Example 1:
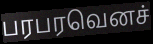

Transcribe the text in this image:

பரபரவெனச்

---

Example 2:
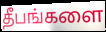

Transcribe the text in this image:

தீபங்களை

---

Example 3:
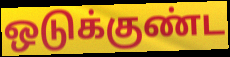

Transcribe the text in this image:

ஒடுக்குண்ட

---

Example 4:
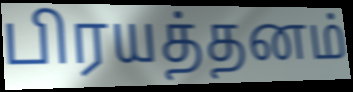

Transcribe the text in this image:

பிரயத்தனம்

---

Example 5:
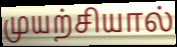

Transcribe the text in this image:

முயற்சியால்